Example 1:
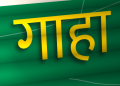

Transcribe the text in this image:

गाहा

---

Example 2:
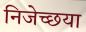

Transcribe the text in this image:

निजेच्छया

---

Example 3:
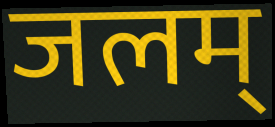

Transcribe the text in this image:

जलम्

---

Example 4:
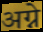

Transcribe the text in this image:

अग्ने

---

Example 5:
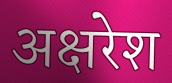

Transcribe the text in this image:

अक्षरेश